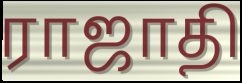
ராஜாதி